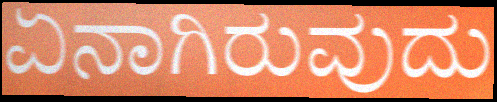
ಏನಾಗಿರುವುದು